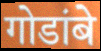
गोडांबे